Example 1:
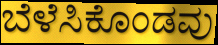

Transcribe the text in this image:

ಬೆಳೆಸಿಕೊಂಡವು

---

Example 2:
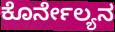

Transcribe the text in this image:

ಕೊರ್ನೇಲ್ಯನ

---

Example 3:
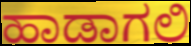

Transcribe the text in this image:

ಹಾಡಾಗಲಿ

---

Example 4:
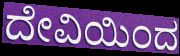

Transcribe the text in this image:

ದೇವಿಯಿಂದ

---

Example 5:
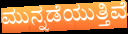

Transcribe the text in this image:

ಮುನ್ನಡೆಯುತ್ತಿವೆ